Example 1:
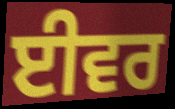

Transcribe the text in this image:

ਈਵਰ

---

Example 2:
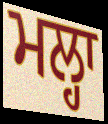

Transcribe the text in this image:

ਮਲ੍ਹਾ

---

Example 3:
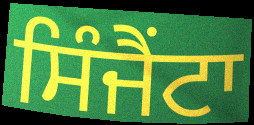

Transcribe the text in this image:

ਸਿੰਜੈਂਟਾ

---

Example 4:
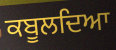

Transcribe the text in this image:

ਕਬੂਲਦਿਆ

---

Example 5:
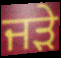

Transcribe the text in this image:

ਜੜੇ